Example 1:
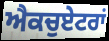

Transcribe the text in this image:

ਐਕਚੁਏਟਰਾਂ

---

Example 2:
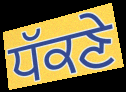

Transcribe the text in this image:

ਧੱਕਣੇ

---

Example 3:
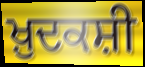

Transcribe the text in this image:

ਖ਼ੁਦਕਸ਼ੀ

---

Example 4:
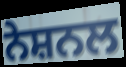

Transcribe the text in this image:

ਨੇਸ਼ਨਲ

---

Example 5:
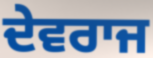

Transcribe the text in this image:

ਦੇਵਰਾਜ